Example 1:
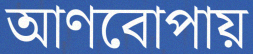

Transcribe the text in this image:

আণবোপায়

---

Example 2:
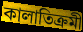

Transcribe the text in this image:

কালাতিক্রমী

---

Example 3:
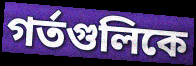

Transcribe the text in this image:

গর্তগুলিকে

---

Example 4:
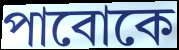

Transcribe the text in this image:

পাবোকে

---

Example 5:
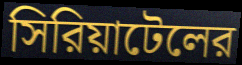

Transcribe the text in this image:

সিরিয়াটেলের